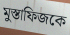
মুস্তাফিজকে